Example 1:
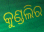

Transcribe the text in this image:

କୁଣ୍ଡଲିର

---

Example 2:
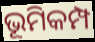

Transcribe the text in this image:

ଭୂମିକମ୍ପ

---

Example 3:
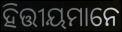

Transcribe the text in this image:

ହିତ୍ତୀୟମାନେ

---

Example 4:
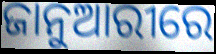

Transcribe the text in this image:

ଜାନୁଆରୀରେ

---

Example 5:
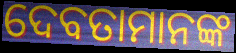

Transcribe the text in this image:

ଦେବତାମାନଙ୍କ